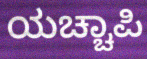
ಯಚ್ಚಾಪಿ